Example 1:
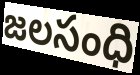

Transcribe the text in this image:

జలసంధి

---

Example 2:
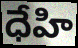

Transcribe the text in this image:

ధేహి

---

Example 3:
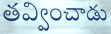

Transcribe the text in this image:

తవ్వించాడు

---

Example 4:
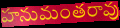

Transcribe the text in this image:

హనుమంతరావు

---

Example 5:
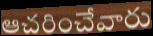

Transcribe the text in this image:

ఆచరించేవారు